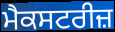
ਮੈਕਸਟਰੀਜ਼